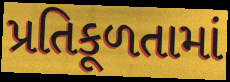
પ્રતિકૂળતામાં